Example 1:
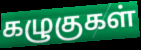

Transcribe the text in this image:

கழுகுகள்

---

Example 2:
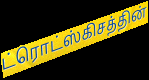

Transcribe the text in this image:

ட்ரொட்ஸ்கிசத்தின்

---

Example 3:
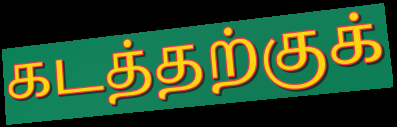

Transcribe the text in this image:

கடத்தற்குக்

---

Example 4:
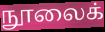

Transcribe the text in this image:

நூலைக்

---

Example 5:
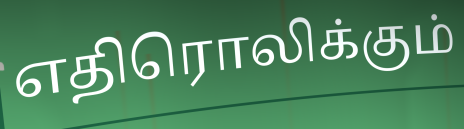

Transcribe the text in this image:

எதிரொலிக்கும்